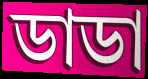
ডাডা